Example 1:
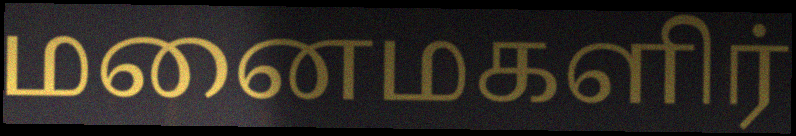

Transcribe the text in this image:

மனைமகளிர்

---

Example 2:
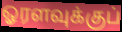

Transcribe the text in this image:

ஓரளவுக்குப்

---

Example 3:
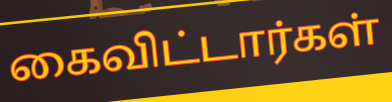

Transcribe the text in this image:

கைவிட்டார்கள்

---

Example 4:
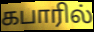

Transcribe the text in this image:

கபாரில்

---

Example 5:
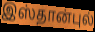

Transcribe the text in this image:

இஸ்தான்புல்